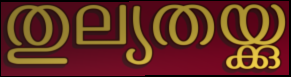
തുല്യതയ്ക്കു